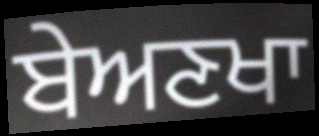
ਬੇਅਣਖਾ